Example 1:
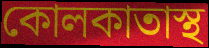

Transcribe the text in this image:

কোলকাতাস্থ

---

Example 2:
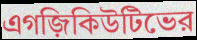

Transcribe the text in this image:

এগজ়িকিউটিভের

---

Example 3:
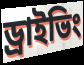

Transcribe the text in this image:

ড্রাইভিং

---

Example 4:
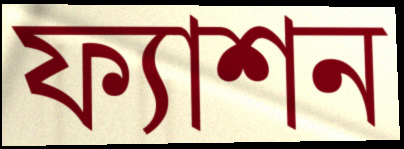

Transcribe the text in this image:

ফ্যাশন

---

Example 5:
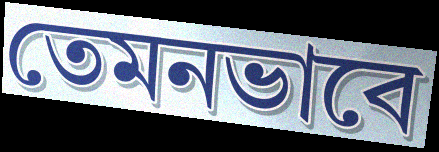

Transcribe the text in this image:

তেমনভাবে